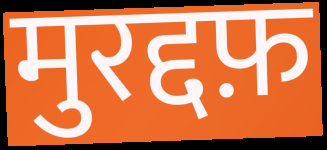
मुरद्दफ़